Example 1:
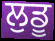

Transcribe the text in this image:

ਲੁਡੂ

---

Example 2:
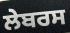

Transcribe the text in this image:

ਲੇਬਰਸ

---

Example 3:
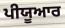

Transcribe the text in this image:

ਪੀਯੂਆਰ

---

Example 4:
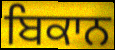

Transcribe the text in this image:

ਬਿਕਾਨ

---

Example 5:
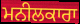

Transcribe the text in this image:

ਮਨੀਲਕਾਰਾ